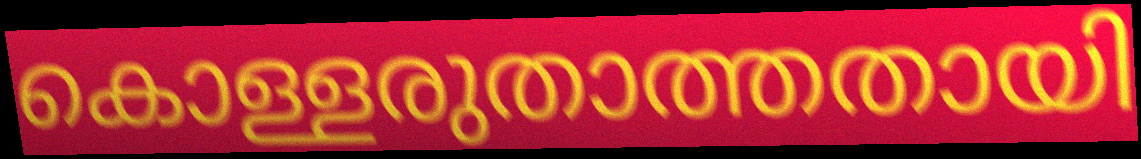
കൊള്ളരുതാത്തതായി